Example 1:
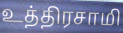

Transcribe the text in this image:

உத்திரசாமி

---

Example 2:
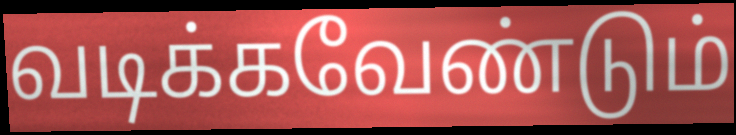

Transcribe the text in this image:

வடிக்கவேண்டும்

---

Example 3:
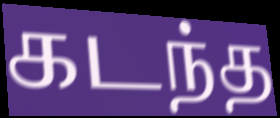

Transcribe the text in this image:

கடந்த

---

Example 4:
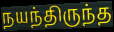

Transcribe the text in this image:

நயந்திருந்த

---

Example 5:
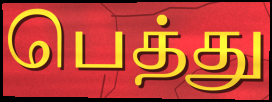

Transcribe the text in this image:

பெத்து